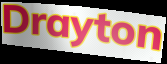
Drayton